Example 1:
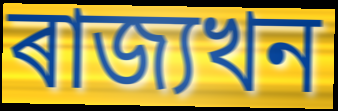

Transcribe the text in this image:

ৰাজ্যখন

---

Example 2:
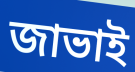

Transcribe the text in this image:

জাভাই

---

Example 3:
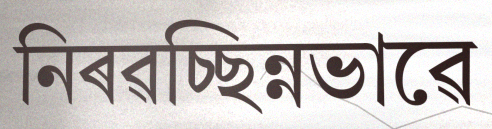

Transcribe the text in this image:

নিৰৱচ্ছিন্নভাৱে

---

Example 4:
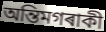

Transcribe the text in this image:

অন্তিমগৰাকী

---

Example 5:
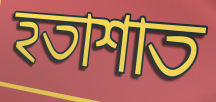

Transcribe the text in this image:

হতাশাত